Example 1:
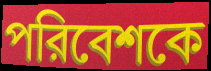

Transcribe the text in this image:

পরিবেশকে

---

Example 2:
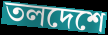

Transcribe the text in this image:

তলদেশে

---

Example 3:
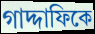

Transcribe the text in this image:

গাদ্দাফিকে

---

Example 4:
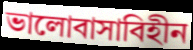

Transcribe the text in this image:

ভালোবাসাবিহীন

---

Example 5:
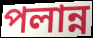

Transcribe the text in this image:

পলান্ন